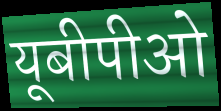
यूबीपीओ